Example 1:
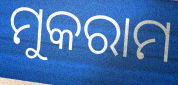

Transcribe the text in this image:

ମୁକରାମ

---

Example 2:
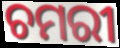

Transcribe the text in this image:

ଚମରୀ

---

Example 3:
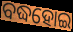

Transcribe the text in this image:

ବଦ୍ଧହୋଇ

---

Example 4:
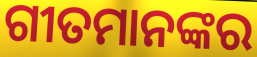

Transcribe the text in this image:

ଗୀତମାନଙ୍କର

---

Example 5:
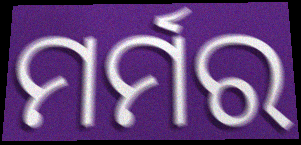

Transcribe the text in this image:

ମର୍ମର